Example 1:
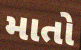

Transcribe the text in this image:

માતો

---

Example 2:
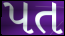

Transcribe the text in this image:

પત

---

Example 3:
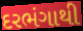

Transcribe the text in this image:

દરભંગાથી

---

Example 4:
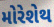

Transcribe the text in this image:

મોરેશેથ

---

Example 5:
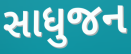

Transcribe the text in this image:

સાધુજન